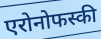
एरोनोफस्की